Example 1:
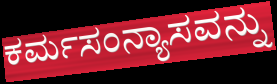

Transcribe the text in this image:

ಕರ್ಮಸಂನ್ಯಾಸವನ್ನು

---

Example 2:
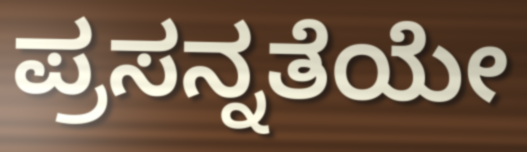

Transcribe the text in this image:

ಪ್ರಸನ್ನತೆಯೇ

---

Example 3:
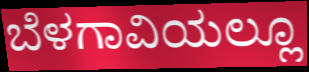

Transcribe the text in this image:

ಬೆಳಗಾವಿಯಲ್ಲೂ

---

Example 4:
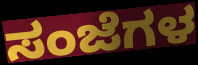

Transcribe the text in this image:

ಸಂಜೆಗಳ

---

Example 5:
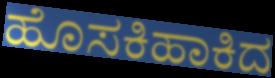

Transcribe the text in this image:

ಹೊಸಕಿಹಾಕಿದ